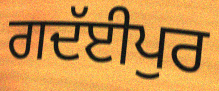
ਗਦੱਈਪੁਰ